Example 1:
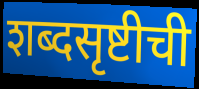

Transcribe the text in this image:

शब्दसृष्टीची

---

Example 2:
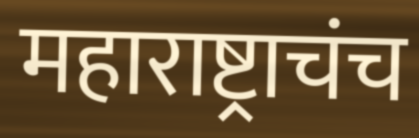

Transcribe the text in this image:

महाराष्ट्राचंच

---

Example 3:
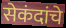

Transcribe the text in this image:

सेकंदांचे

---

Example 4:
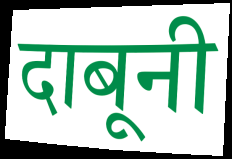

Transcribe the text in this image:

दाबूनी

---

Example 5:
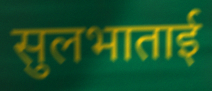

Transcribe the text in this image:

सुलभाताई